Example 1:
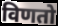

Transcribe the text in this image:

विणतो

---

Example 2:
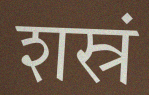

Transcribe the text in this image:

शस्रं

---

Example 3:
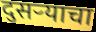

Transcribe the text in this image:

दुसऱ्याचा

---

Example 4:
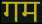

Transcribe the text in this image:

गम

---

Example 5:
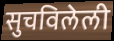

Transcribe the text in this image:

सुचविलेली